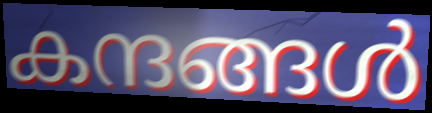
കന്ദങ്ങൾ